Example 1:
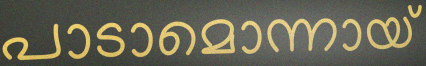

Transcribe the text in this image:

പാടാമൊന്നായ്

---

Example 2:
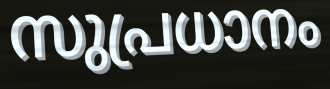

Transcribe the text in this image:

സുപ്രധാനം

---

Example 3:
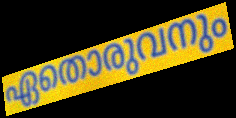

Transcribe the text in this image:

ഏതൊരുവനും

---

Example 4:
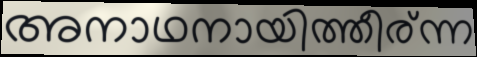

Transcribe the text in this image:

അനാഥനായിത്തീര്ന്ന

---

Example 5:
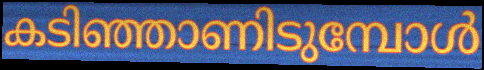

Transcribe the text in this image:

കടിഞ്ഞാണിടുമ്പോൾ